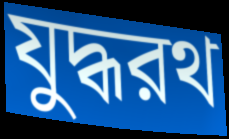
যুদ্ধরথ